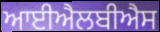
ਆਈਐਲਬੀਐਸ